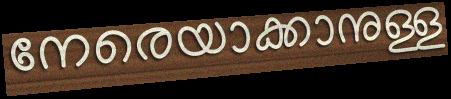
നേരെയാക്കാനുള്ള